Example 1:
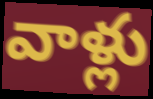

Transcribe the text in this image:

వాళ్లు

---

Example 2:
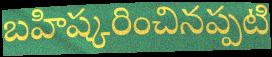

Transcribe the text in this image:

బహిష్కరించినప్పటి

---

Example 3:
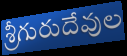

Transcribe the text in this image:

శ్రీగురుదేవుల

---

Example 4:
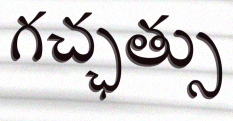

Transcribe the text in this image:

గచ్ఛత్సు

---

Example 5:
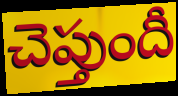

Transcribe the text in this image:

చెప్తుందీ